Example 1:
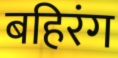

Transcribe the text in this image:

बहिरंग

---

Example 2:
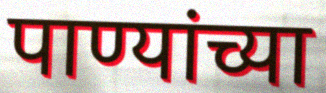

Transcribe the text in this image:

पाण्यांच्या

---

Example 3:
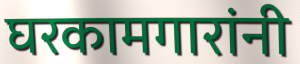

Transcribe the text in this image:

घरकामगारांनी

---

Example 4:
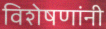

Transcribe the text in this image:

विशेषणांनी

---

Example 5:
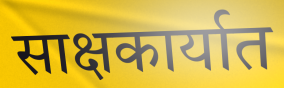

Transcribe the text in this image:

साक्षकार्यात